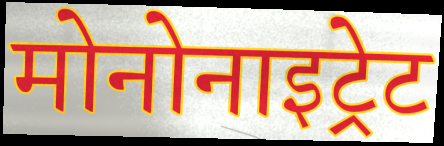
मोनोनाइट्रेट